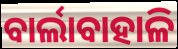
ବାର୍ଲାବାହାଳି